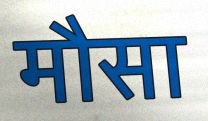
मौसा